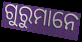
ଗୁରୁମାନେ